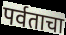
पर्वताचा